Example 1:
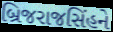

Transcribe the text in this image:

બ્રિજરાજસિંહને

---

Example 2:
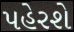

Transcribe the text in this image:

પહેરશે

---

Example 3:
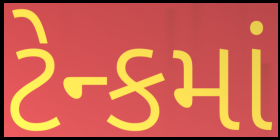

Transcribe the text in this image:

ટેન્કમાં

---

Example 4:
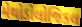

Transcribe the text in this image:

મેથોડોલોજિકલ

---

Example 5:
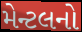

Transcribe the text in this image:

મેન્ટલનો